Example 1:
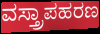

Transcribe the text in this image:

ವಸ್ತ್ರಾಪಹರಣ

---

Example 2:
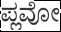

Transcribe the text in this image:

ಪ್ಲವೋ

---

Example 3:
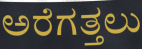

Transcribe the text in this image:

ಅರೆಗತ್ತಲು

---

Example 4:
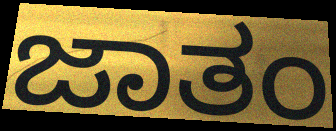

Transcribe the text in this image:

ಜಾತಂ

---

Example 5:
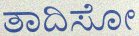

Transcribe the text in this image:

ತಾದಿಸೋ